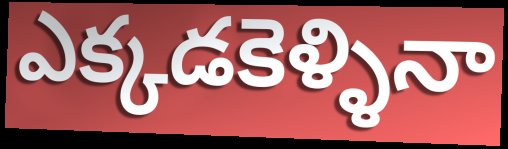
ఎక్కడకెళ్ళినా